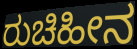
ರುಚಿಹೀನ